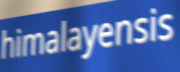
himalayensis